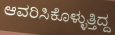
ಆವರಿಸಿಕೊಳ್ಳುತ್ತಿದ್ದ